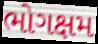
ભોગક્ષમ